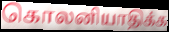
கொலனியாதிக்க